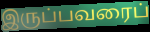
இருப்பவரைப்